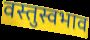
वस्तुस्वभाव